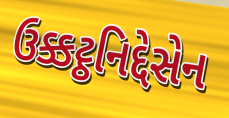
ઉક્કટ્ઠનિદ્દેસેન